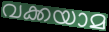
വക്കയാമ